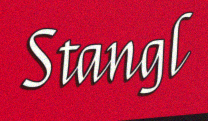
Stangl